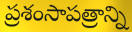
ప్రశంసాపత్రాన్ని